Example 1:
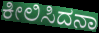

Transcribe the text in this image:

ಕೀಲಿಸಿದನಾ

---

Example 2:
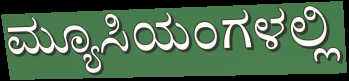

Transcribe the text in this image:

ಮ್ಯೂಸಿಯಂಗಳಲ್ಲಿ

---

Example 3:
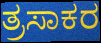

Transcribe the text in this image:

ತ್ರಸಾಕರ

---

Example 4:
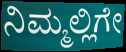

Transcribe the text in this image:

ನಿಮ್ಮಲ್ಲಿಗೇ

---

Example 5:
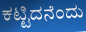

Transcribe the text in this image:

ಕಟ್ಟಿದನೆಂದು